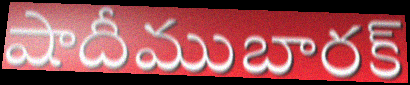
షాదీముబారక్